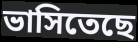
ভাসিতেছে